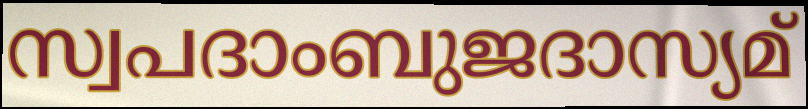
സ്വപദാംബുജദാസ്യമ്